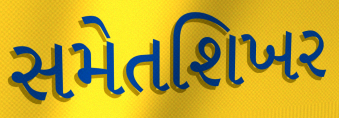
સમેતશિખર